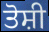
ਤੋਸ਼ੀ